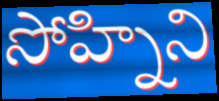
సోహ్నిని